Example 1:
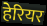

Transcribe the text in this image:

हेरियर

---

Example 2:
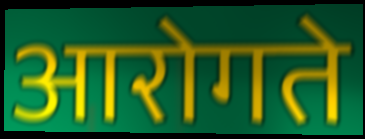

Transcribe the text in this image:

आरोगते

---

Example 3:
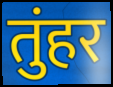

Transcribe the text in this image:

तुंहर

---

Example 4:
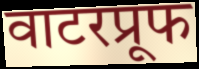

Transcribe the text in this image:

वाटरप्रूफ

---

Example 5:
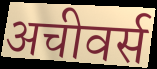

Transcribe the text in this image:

अचीवर्स